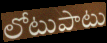
లోటుపాటు